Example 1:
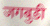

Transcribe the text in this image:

जगबुडी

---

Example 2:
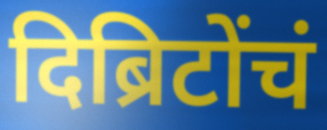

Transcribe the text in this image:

दिब्रिटोंचं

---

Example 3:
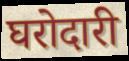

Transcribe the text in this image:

घरोदारी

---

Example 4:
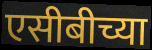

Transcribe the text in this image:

एसीबीच्या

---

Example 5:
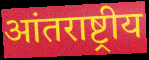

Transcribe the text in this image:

आंतराष्ट्रीय